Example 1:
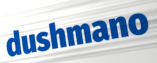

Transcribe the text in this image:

dushmano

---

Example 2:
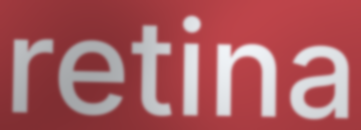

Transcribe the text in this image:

retina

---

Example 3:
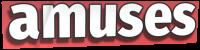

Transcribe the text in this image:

amuses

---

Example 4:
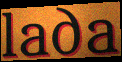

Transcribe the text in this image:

lada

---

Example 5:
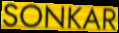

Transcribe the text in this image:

SONKAR